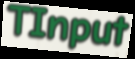
TInput